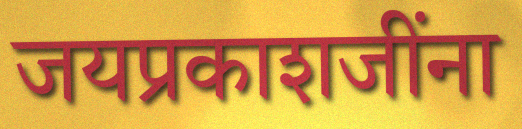
जयप्रकाशजींना